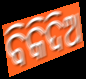
ବିକିଦିଅ